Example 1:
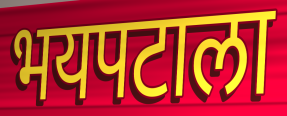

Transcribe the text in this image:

भयपटाला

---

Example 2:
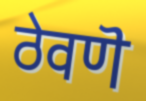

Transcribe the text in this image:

ठेवणॆ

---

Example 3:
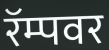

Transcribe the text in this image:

रॅम्पवर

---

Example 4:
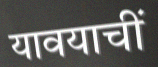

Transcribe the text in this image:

यावयाचीं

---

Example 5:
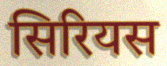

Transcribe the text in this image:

सिरियस